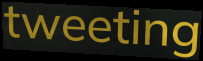
tweeting